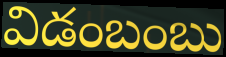
విడంబంబు